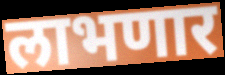
लाभणार